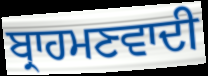
ਬ੍ਰਾਹਮਣਵਾਦੀ